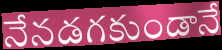
నేనడగకుండానే